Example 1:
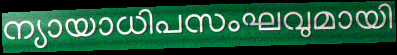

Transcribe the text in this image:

ന്യായാധിപസംഘവുമായി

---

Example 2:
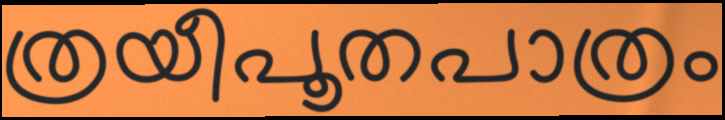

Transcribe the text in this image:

ത്രയീപൂതപാത്രം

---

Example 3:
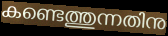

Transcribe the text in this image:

കണ്ടെത്തുന്നതിനു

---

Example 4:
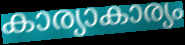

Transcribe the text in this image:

കാര്യാകാര്യം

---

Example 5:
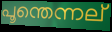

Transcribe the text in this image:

പൂന്തെന്നല്